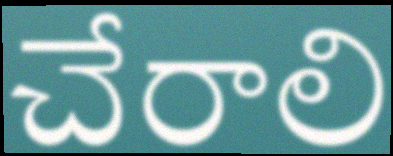
చేరాలి